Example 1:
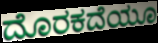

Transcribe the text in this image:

ದೊರಕದೆಯೂ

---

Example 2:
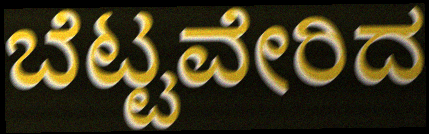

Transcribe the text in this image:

ಬೆಟ್ಟವೇರಿದ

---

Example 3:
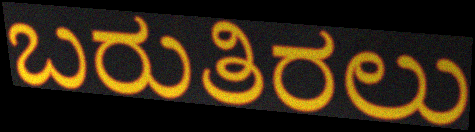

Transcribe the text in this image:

ಬರುತಿರಲು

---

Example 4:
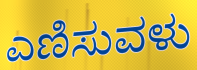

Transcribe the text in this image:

ಎಣಿಸುವಳು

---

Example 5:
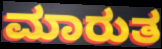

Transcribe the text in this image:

ಮಾರುತ